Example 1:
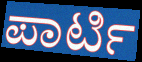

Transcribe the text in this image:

ಪಾರ್ಟಿ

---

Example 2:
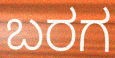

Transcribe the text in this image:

ಬರಗ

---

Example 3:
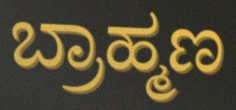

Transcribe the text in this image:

ಬ್ರಾಹ್ಮಣ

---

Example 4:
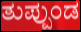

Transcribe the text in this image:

ತುಪ್ಪುಂಡ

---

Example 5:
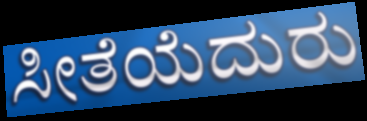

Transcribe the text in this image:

ಸೀತೆಯೆದುರು